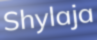
Shylaja